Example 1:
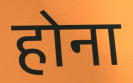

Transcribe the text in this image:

होना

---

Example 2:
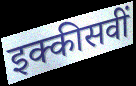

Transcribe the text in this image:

इक्कीसवीं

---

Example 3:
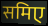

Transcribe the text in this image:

समिए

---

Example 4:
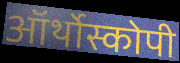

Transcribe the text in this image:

ऑर्थोस्कोपी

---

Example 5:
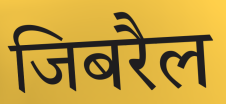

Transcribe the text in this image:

जिबरैल